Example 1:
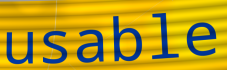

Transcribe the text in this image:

usable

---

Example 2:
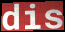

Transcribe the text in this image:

dis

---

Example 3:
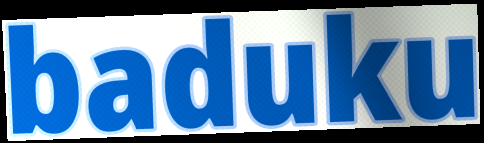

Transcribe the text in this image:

baduku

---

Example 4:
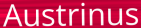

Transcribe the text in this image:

Austrinus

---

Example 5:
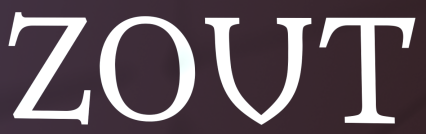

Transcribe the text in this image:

ZOUT